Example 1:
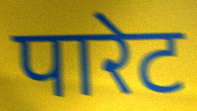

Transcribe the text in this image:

पारेट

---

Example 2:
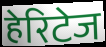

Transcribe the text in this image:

हेरिटेज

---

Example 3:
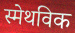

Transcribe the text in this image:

स्मेथविक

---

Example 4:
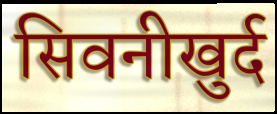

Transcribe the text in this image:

सिवनीखुर्द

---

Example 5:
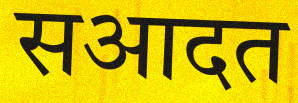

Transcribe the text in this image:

सआदत